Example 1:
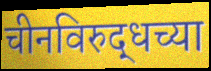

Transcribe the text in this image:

चीनविरुद्धच्या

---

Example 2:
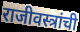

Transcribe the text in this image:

राजीवस्त्रांची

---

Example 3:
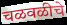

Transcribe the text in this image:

चळवळीचे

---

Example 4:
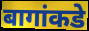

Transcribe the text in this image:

बागांकडे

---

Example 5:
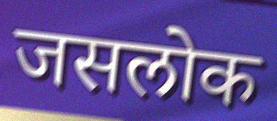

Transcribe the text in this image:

जसलोक